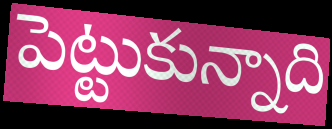
పెట్టుకున్నాది